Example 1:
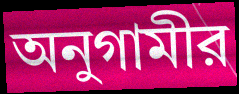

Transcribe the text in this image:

অনুগামীর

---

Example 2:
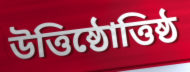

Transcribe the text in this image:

উত্তিষ্ঠোত্তিষ্ঠ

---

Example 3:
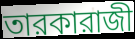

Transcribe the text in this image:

তারকারাজী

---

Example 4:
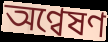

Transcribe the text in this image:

অণ্বেষণ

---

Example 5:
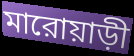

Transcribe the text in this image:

মারোয়াড়ী